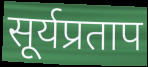
सूर्यप्रताप